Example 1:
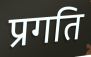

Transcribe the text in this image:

प्रगति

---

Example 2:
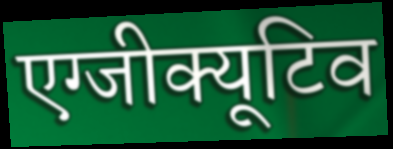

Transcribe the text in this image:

एग्जीक्यूटिव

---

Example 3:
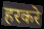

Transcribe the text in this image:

हरकरे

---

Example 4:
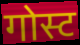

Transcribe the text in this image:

गोस्ट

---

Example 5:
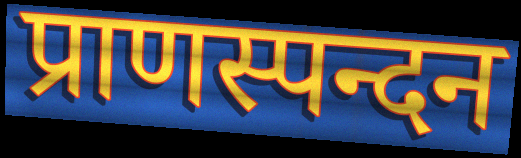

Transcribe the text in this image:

प्राणस्पन्दन